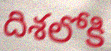
దిశలోకి